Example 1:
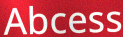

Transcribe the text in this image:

Abcess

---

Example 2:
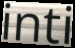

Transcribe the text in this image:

inti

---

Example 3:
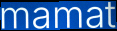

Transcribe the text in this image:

mamat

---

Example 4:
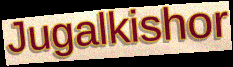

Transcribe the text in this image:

Jugalkishor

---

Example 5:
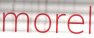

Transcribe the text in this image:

morel